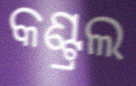
କଣ୍ଟ୍ରଲ